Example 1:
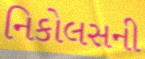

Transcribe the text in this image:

નિકોલસની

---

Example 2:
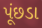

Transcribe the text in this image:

પૂંછડા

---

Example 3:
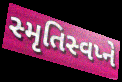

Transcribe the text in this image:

સ્મૃતિસ્વપ્ને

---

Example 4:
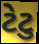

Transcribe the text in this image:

ટેટુ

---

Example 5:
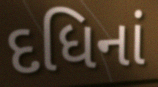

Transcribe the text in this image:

દધિનાં